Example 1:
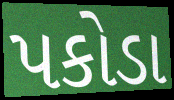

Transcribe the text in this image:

પકોડા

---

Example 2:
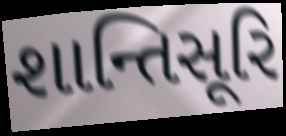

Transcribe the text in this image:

શાન્તિસૂરિ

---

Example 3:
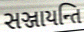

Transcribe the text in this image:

સઞ્જાયન્તિ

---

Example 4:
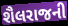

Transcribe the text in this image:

શૈલરાજની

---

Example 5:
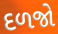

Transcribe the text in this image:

દળજો